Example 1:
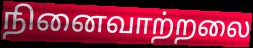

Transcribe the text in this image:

நினைவாற்றலை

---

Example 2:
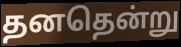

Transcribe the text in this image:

தனதென்று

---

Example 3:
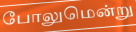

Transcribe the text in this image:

போலுமென்று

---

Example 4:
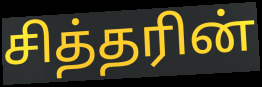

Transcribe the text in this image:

சித்தரின்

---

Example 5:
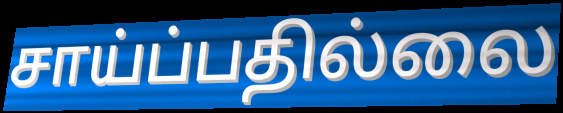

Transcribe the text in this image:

சாய்ப்பதில்லை